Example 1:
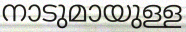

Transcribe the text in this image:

നാടുമായുള്ള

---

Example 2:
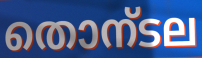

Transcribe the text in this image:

തൊന്ടല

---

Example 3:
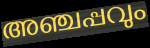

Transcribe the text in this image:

അഞ്ചപ്പവും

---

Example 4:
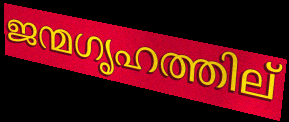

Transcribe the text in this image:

ജന്മഗൃഹത്തില്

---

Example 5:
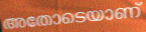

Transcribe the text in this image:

അതോടെയാണ്